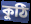
কুঠি